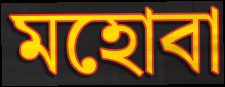
মহোবা